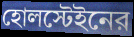
হোলস্টেইনের